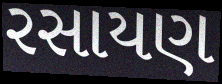
રસાયણ